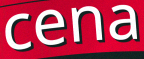
cena